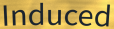
Induced